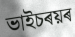
ভাইচৰয়ৰ